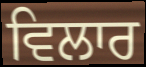
ਵਿਲਾਰ